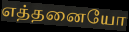
எத்தனையோ